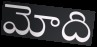
మోది